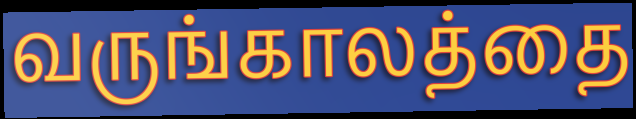
வருங்காலத்தை